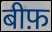
बीफ़